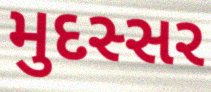
મુદસ્સર